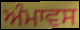
ਅੰਮਾਵਸ